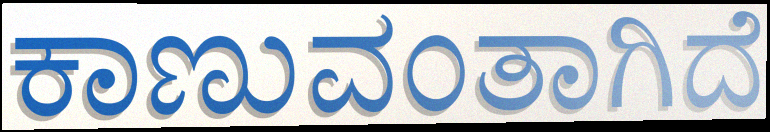
ಕಾಣುವಂತಾಗಿದೆ